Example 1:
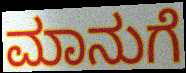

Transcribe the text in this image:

ಮಾನುಗೆ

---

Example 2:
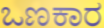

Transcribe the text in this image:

ಒಣಕಾರ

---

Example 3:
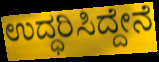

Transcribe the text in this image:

ಉದ್ಧರಿಸಿದ್ದೇನೆ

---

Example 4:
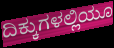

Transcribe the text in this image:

ದಿಕ್ಕುಗಳಲ್ಲಿಯೂ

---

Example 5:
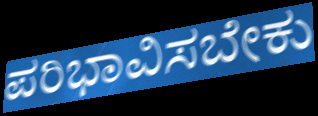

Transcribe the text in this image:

ಪರಿಭಾವಿಸಬೇಕು